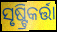
ସୃଷ୍ଟ୍ରିକର୍ତ୍ତା